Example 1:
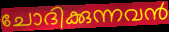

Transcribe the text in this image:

ചോദിക്കുന്നവൻ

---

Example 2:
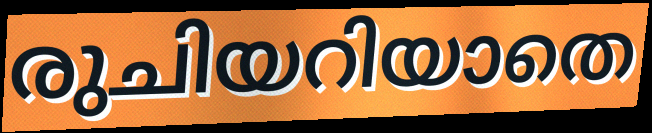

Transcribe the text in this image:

രുചിയറിയാതെ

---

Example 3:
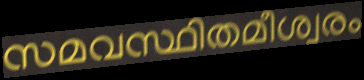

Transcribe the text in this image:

സമവസ്ഥിതമീശ്വരം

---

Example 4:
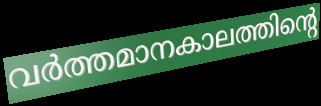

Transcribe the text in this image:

വർത്തമാനകാലത്തിന്റെ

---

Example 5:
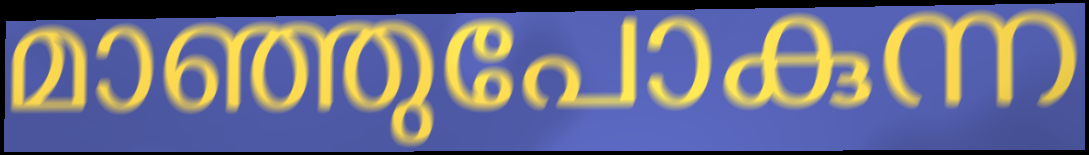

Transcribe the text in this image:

മാഞ്ഞുപോകുന്ന